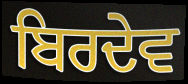
ਬਿਰਦੇਵ